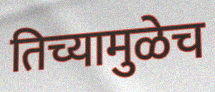
तिच्यामुळेच